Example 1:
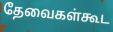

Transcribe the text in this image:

தேவைகள்கூட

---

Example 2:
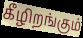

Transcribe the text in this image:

கீழிறங்கும்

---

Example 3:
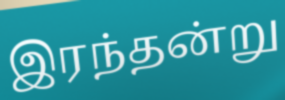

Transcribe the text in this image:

இரந்தன்று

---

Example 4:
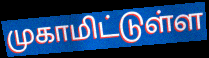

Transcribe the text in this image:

முகாமிட்டுள்ள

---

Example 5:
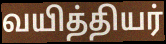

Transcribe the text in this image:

வயித்தியர்